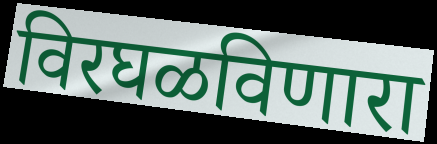
विरघळविणारा